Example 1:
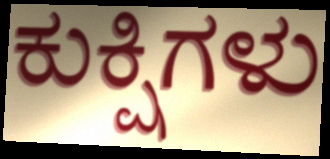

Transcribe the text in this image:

ಕುಕ್ಷಿಗಳು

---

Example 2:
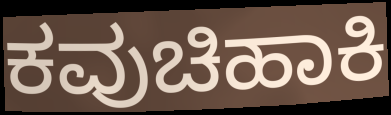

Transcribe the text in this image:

ಕವುಚಿಹಾಕಿ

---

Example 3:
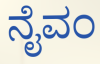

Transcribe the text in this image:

ನೈವಂ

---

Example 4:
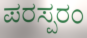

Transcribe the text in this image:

ಪರಸ್ಪರಂ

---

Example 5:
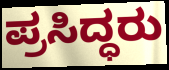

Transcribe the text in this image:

ಪ್ರಸಿದ್ಧರು